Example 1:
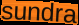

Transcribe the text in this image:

sundra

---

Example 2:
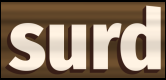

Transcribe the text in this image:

surd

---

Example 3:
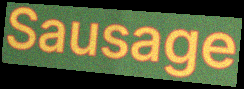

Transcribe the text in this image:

Sausage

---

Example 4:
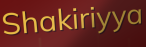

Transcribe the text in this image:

Shakiriyya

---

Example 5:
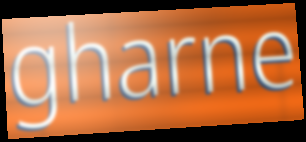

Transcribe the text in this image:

gharne